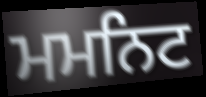
ਮਮਨਿਟ